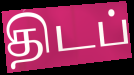
திடப்